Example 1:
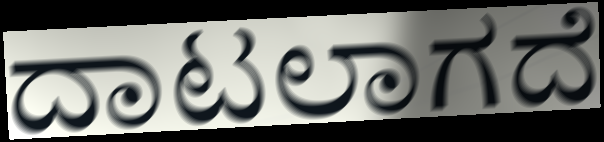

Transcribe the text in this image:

ದಾಟಲಾಗದೆ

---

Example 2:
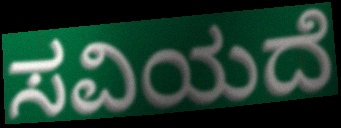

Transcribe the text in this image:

ಸವಿಯದೆ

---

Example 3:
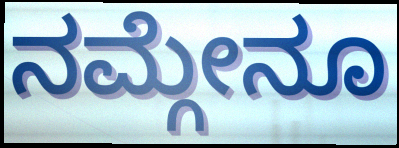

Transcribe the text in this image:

ನಮ್ಗೇನೂ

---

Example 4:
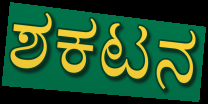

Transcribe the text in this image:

ಶಕಟನ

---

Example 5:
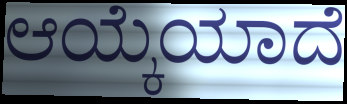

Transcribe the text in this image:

ಆಯ್ಕೆಯಾದೆ